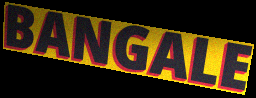
BANGALE